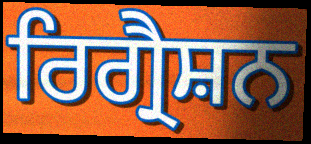
ਰਿਗ੍ਰੈਸ਼ਨ